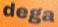
dega